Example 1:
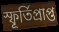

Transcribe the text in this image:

স্ফূর্তিপ্রাপ্ত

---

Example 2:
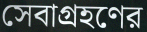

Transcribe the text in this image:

সেবাগ্রহণের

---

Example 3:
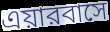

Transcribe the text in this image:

এয়ারবাসে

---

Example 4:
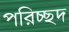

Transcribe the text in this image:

পরিচ্ছদ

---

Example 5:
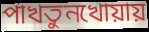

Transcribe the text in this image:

পাখতুনখোয়ায়